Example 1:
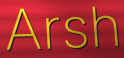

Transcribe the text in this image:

Arsh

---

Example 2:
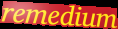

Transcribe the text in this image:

remedium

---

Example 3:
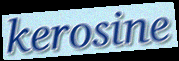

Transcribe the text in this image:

kerosine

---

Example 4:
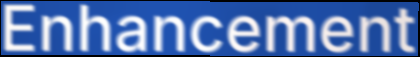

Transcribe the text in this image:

Enhancement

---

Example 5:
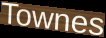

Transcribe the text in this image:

Townes